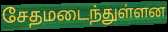
சேதமடைந்துள்ளன